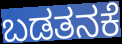
ಬಡತನಕೆ